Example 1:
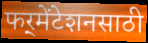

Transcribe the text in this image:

फर्मेंटेशनसाठी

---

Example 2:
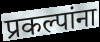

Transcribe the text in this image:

प्रकल्पांना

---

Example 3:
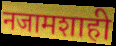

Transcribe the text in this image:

नजामशाही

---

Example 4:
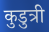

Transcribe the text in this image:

कुडुत्री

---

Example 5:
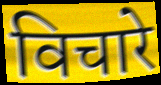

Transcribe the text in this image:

विचारे